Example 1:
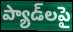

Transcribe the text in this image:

ప్యాడ్‌లపై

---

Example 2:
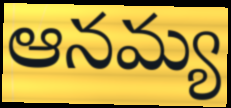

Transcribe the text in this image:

ఆనమ్య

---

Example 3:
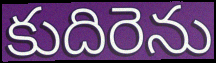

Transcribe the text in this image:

కుదిరెను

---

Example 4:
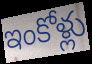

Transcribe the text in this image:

ఇంకోళ్లు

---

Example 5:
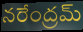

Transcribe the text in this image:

నరేంద్రమ్